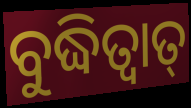
ବୁଦ୍ଧିତ୍ୱାତ୍